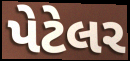
પેટેલર